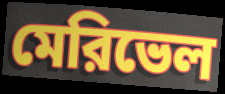
মেরিভেল